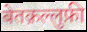
बेतक़ल्लुफ़ी